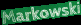
Markowski